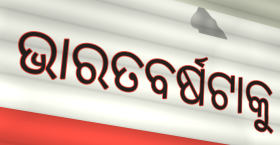
ଭାରତବର୍ଷଟାକୁ